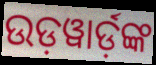
ଉଡ଼ୱାର୍ଡ଼ଙ୍କ